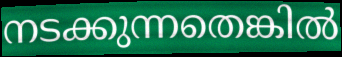
നടക്കുന്നതെങ്കിൽ